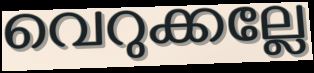
വെറുക്കല്ലേ